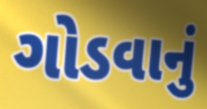
ગોડવાનું